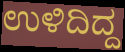
ಉಳಿದಿದ್ದ